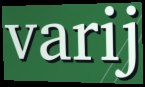
varij